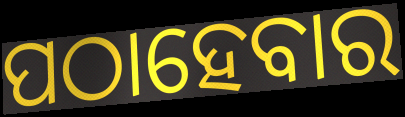
ପଠାହେବାର